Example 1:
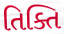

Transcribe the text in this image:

તિક્તિ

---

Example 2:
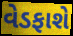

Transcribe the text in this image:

વેડફાશે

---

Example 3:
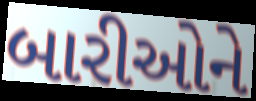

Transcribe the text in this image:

બારીઓને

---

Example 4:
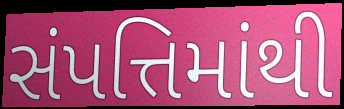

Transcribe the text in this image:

સંપત્તિમાંથી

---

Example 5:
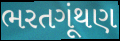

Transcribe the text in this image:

ભરતગૂંથણ